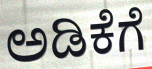
ಅಡಿಕೆಗೆ